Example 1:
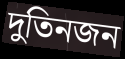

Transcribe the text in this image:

দুতিনজন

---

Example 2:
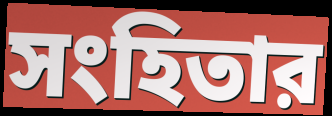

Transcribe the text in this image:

সংহিতার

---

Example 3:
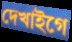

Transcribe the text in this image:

দেখাইগে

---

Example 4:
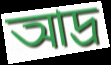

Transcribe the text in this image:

আদ্র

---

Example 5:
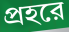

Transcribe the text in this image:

প্রহরে